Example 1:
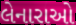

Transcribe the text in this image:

લેનારાઓ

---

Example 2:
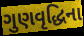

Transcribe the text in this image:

ગુણવૃદ્ધિના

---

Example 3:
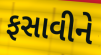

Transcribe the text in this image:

ફસાવીને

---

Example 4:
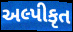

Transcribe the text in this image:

અલ્પીકૃત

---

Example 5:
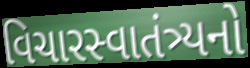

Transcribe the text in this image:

વિચારસ્વાતંત્ર્યનો